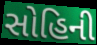
સોહિની